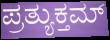
ಪ್ರತ್ಯುಕ್ತಮ್